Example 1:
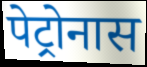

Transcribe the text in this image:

पेट्रोनास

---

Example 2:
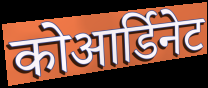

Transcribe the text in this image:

कोआर्डिनेट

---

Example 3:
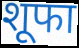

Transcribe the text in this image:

शूफा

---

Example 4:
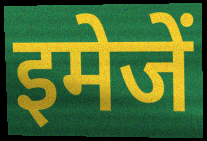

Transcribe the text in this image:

इमेजें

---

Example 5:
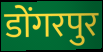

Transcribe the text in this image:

डोंगरपुर